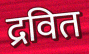
द्रवित